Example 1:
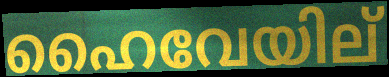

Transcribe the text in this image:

ഹൈവേയില്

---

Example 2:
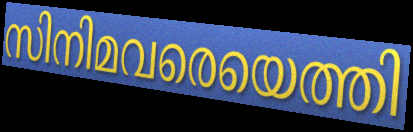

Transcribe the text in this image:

സിനിമവരെയെത്തി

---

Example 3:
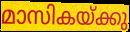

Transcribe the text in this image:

മാസികയ്ക്കു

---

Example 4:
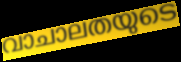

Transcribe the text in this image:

വാചാലതയുടെ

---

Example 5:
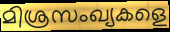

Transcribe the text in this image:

മിശ്രസംഖ്യകളെ